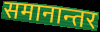
समानान्तर